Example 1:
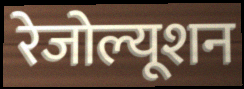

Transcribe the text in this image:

रेजोल्यूशन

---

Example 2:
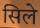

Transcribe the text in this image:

सिले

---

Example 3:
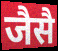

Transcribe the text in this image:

जैसै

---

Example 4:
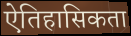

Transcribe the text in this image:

ऐतिहासिकता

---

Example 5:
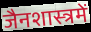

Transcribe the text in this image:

जैनशास्त्रमें